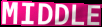
MIDDLE